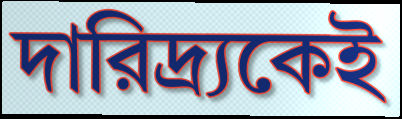
দারিদ্র্যকেই